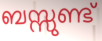
ബസ്സുണ്ട്